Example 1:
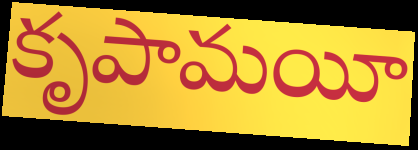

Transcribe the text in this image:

కృపామయీ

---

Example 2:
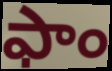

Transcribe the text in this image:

ఫాం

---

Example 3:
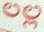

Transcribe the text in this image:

లల్ల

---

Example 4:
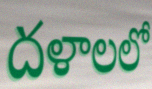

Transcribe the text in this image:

దళాలలో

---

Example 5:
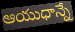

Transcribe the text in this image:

ఆయుధాన్నే